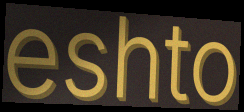
eshto